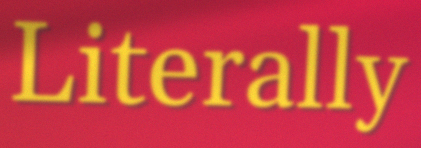
Literally